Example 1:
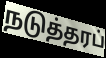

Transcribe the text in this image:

நடுத்தரப்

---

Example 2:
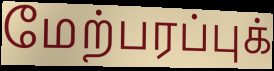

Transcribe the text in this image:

மேற்பரப்புக்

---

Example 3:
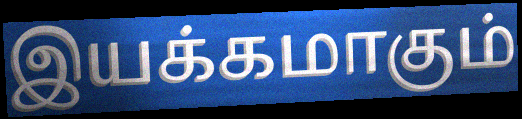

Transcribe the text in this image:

இயக்கமாகும்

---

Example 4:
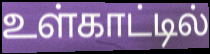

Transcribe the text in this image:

உள்காட்டில்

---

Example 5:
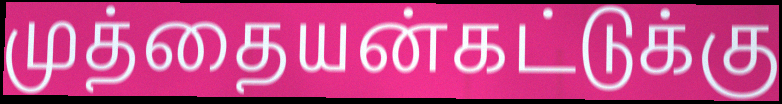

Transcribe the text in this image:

முத்தையன்கட்டுக்கு